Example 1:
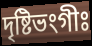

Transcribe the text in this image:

দৃষ্টিভংগীঃ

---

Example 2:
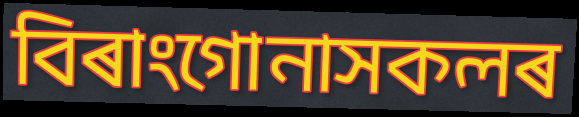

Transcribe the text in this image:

বিৰাংগোনাসকলৰ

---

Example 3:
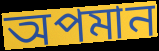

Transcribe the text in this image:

অপমান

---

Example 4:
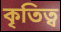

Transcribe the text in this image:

কৃতিত্ব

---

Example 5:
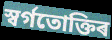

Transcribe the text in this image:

স্বৰ্গতোক্তিৰ